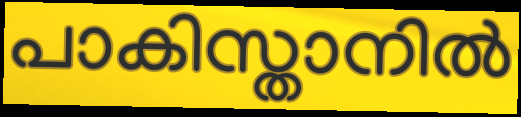
പാകിസ്താനിൽ